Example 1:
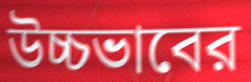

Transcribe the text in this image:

উচ্চভাবের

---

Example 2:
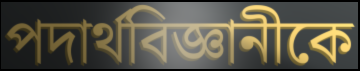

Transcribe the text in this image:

পদার্থবিজ্ঞানীকে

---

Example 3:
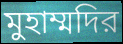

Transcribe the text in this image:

মুহাম্মদির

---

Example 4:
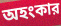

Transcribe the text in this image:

অহংকার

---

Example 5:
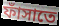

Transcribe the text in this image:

ফাঁসাতে